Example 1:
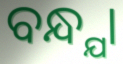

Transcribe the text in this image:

ବନ୍ଧ୍ଯା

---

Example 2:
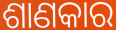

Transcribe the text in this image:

ଶାଣକାର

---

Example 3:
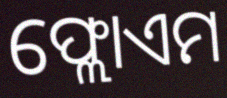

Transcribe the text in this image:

ଫ୍ଲୋଏମ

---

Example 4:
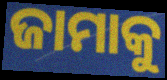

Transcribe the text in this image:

ଜାମାକୁ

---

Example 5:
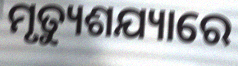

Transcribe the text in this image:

ମୃତ୍ୟୁଶଯ୍ୟାରେ